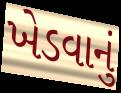
ખેડવાનું